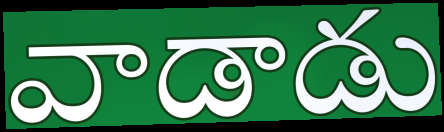
వాడాడు